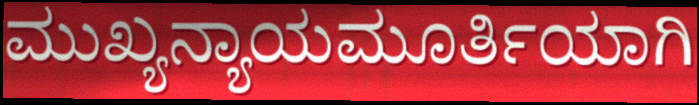
ಮುಖ್ಯನ್ಯಾಯಮೂರ್ತಿಯಾಗಿ